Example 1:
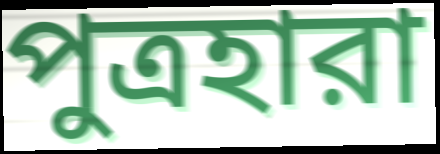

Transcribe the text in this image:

পুত্রহারা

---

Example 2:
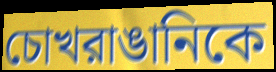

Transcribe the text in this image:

চোখরাঙানিকে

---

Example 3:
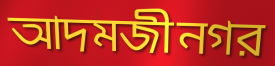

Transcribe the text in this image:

আদমজীনগর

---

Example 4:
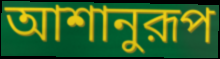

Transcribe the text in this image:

আশানুরূপ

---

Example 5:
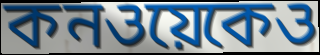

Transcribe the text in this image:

কনওয়েকেও